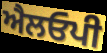
ਐਲਓਪੀ